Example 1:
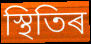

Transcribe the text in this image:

স্থিতিৰ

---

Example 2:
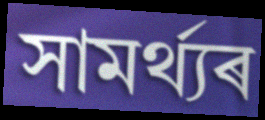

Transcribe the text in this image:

সামৰ্থ্যৰ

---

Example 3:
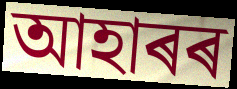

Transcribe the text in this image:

আহাৰৰ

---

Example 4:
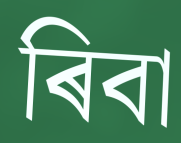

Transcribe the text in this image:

ৰিবা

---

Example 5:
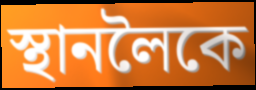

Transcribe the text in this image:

স্থানলৈকে